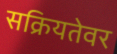
सक्रियतेवर